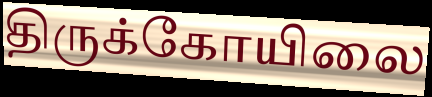
திருக்கோயிலை